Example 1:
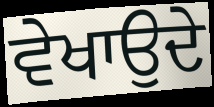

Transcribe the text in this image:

ਵੇਖਾਉਦੇ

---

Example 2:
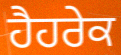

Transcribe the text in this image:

ਹੈਹਰੇਕ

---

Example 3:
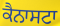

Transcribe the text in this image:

ਕੈਨਾਸਟਾ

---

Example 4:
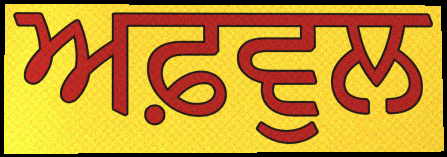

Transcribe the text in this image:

ਅਫ਼ਵੁਲ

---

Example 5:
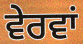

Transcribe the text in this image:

ਵੇਰਵਾਂ